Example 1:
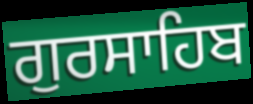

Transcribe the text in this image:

ਗੁਰਸਾਹਿਬ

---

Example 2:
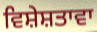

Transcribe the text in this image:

ਵਿਸ਼ੇਸ਼ਤਾਵਾ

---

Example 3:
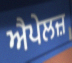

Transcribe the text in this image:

ਐਪੇਲਜ਼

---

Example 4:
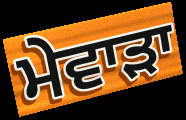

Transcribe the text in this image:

ਮੇਵਾੜਾ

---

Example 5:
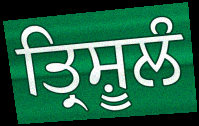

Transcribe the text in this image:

ਤ੍ਰਿਸ਼ੂਲੰ